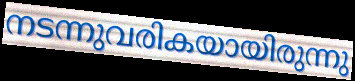
നടന്നുവരികയായിരുന്നു